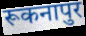
रूकनापुर